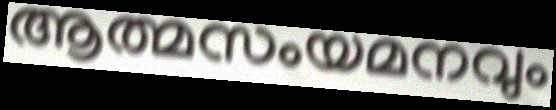
ആത്മസംയമനവും